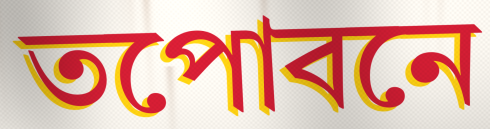
তপোবনে